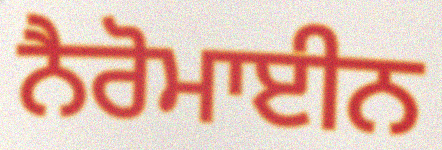
ਨੈਰੋਮਾਈਨ